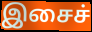
இசைச்